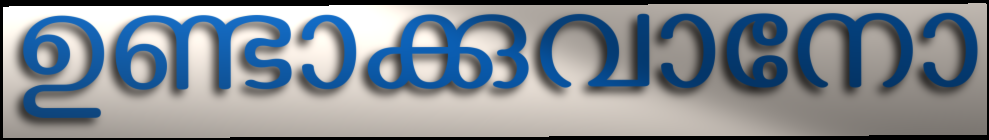
ഉണ്ടാക്കുവാനോ